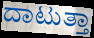
ದಾಟುತ್ತಾ